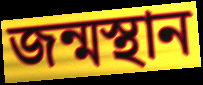
জন্মস্থান